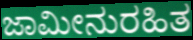
ಜಾಮೀನುರಹಿತ